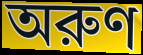
অরুণ